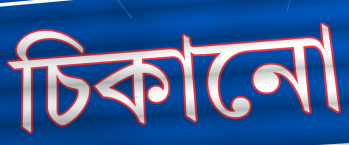
চিকানো